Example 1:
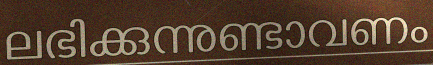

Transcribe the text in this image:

ലഭിക്കുന്നുണ്ടാവണം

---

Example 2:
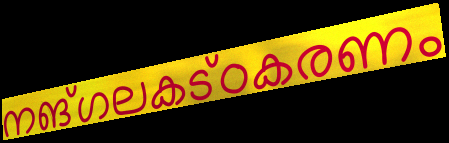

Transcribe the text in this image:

നങ്ഗലകട്ഠകരണം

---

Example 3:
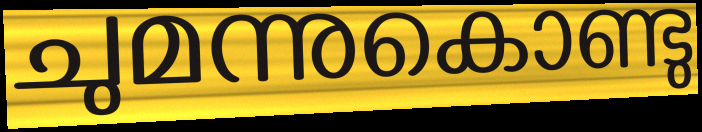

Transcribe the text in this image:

ചുമന്നുകൊണ്ടു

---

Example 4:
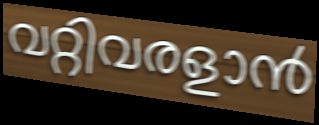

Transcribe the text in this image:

വറ്റിവരളാൻ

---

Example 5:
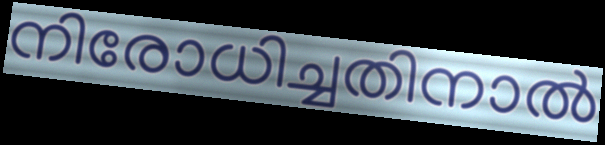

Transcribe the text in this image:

നിരോധിച്ചതിനാൽ